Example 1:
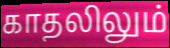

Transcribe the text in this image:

காதலிலும்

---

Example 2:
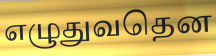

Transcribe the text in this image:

எழுதுவதென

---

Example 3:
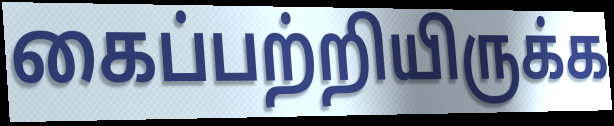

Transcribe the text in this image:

கைப்பற்றியிருக்க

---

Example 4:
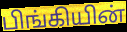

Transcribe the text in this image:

பிங்கியின்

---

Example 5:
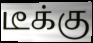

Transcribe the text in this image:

டீக்கு